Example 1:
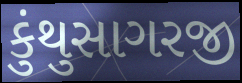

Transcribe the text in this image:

કુંથુસાગરજી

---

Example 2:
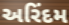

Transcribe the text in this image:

અરિંદમ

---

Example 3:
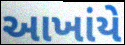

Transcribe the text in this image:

આખાંયે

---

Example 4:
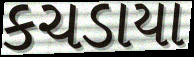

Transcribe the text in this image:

કચડાયા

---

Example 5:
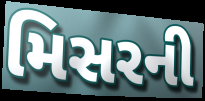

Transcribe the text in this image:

મિસરની